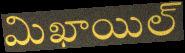
మిఖాయిల్